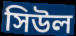
সিউল